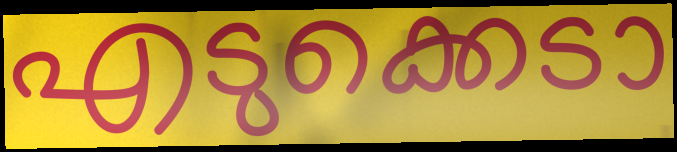
എടുക്കെടാ